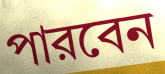
পারবেন